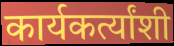
कार्यकर्त्यांशी